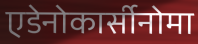
एडेनोकार्सीनोमा